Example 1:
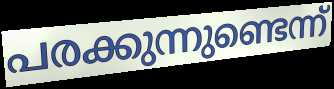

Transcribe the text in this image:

പരക്കുന്നുണ്ടെന്ന്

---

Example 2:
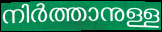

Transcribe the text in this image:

നിർത്താനുള്ള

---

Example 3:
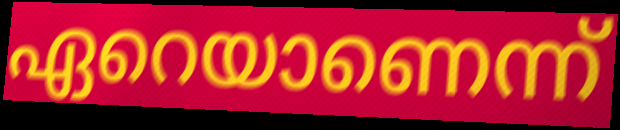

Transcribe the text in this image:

ഏറെയാണെന്ന്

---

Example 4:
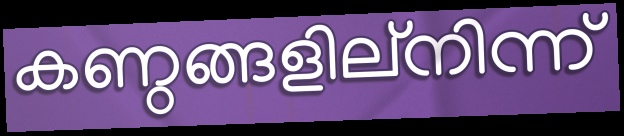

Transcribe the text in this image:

കണ്ഠങ്ങളില്നിന്ന്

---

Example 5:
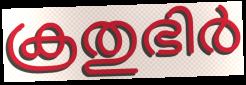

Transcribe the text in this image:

ക്രതുഭിർ